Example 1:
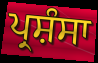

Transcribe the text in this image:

ਪ੍ਰਸ਼ੰਸਾ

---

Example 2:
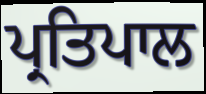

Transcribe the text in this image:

ਪ੍ਰਤਿਪਾਲ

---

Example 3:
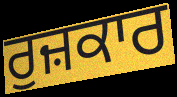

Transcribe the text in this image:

ਰੁਜ਼ਕਾਰ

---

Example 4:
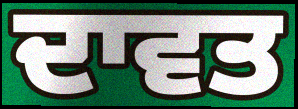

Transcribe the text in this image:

ਦਾਵਤ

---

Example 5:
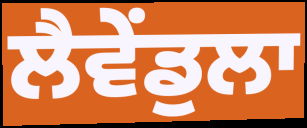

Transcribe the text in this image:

ਲੈਵੇਂਡੁਲਾ